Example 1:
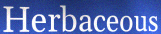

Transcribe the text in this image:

Herbaceous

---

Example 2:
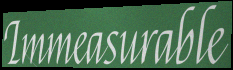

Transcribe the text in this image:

Immeasurable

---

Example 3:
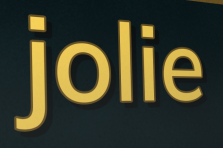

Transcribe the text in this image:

jolie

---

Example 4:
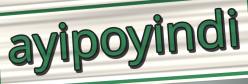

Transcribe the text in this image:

ayipoyindi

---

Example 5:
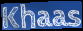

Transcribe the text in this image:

Khaas